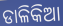
ଡାଳିକିଆ